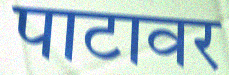
पाटावर